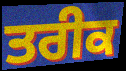
ਤਰੀਕ